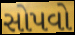
સોપવો